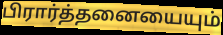
பிரார்த்தனையையும்